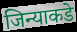
जिन्याकडे